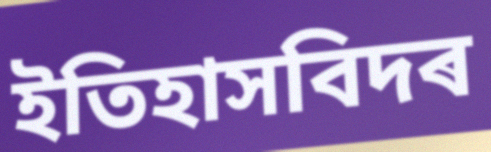
ইতিহাসবিদৰ